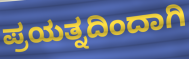
ಪ್ರಯತ್ನದಿಂದಾಗಿ